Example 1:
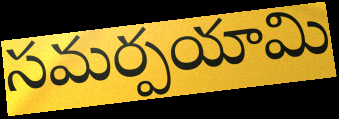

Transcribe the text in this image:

సమర్పయామి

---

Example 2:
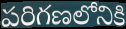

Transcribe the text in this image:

పరిగణలోనికి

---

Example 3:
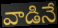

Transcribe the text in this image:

వాడినే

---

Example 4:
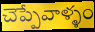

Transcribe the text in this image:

చెప్పేవాళ్ళం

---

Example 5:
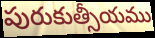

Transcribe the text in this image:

పురుకుత్సీయము